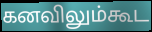
கனவிலும்கூட